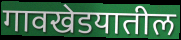
गावखेडयातील